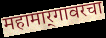
महामार्गावरचा